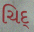
ચિદ્